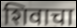
शिवाचा